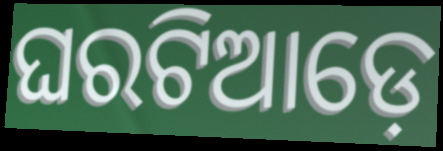
ଘରଟିଆଡ଼େ